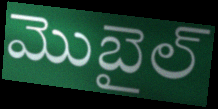
మొబైల్